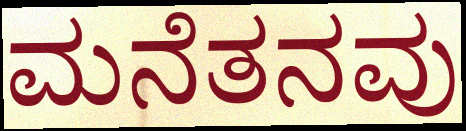
ಮನೆತನವು